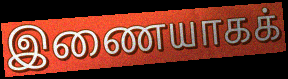
இணையாகக்